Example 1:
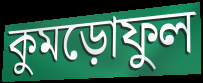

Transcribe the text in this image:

কুমড়োফুল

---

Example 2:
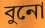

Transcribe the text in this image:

বুনো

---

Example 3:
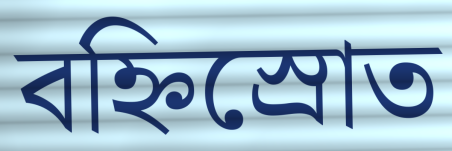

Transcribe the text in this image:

বহ্নিস্রোত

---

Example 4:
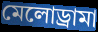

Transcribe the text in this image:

মেলোড্রামা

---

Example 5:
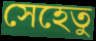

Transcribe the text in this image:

সেহেতু